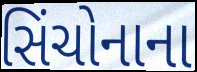
સિંચોનાના